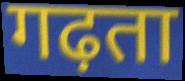
गढ़ता